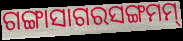
ଗଙ୍ଗାସାଗରସଙ୍ଗମମ୍